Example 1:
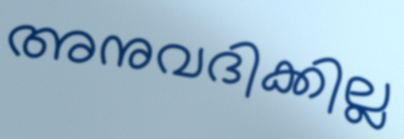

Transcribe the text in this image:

അനുവദിക്കില്ല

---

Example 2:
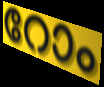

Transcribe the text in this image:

റോം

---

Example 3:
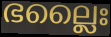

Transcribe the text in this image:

ഭല്ലൈഃ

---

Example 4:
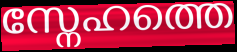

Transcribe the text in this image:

സ്നേഹത്തെ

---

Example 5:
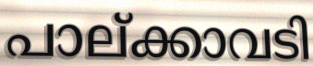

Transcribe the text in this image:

പാല്ക്കാവടി